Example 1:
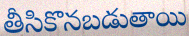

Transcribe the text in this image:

తీసికొనబడుతాయి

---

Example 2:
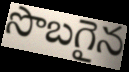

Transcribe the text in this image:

సొబగైన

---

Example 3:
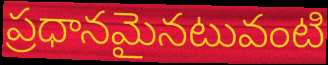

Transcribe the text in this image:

ప్రధానమైనటువంటి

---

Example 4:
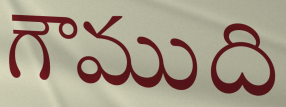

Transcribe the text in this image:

గౌముది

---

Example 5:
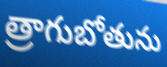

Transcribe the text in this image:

త్రాగుబోతును